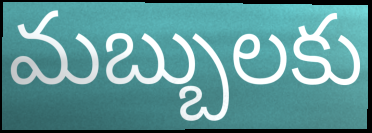
మబ్బులకు